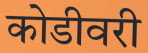
कोडीवरी